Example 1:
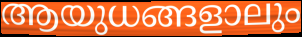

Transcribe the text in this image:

ആയുധങ്ങളാലും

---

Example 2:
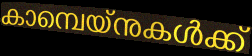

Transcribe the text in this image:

കാമ്പെയ്നുകൾക്ക്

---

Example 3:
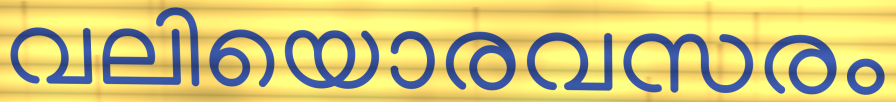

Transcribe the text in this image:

വലിയൊരവസരം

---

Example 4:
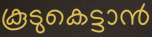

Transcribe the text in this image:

കൂടുകെട്ടാൻ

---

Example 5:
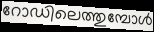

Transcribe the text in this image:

റോഡിലെത്തുമ്പോൾ